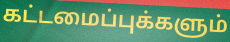
கட்டமைப்புக்களும்